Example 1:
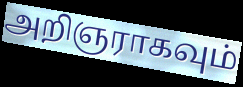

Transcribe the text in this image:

அறிஞராகவும்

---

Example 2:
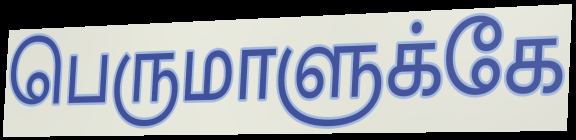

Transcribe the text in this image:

பெருமாளுக்கே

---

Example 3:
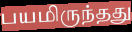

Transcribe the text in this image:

பயமிருந்தது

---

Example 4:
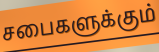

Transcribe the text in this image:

சபைகளுக்கும்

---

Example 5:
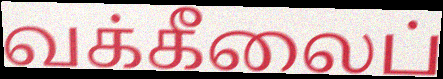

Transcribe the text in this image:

வக்கீலைப்